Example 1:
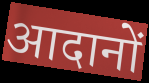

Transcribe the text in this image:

आदानों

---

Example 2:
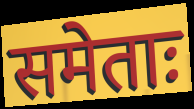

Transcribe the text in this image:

समेताः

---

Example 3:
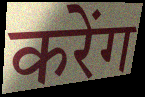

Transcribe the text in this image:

करेंग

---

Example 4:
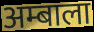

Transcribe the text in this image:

अम्‍बाला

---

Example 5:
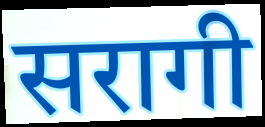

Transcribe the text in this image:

सरागी